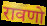
रावणो